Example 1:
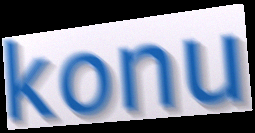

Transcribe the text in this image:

konu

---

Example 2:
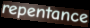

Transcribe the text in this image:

repentance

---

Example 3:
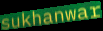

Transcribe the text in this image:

sukhanwar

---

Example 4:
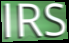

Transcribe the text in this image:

IRS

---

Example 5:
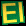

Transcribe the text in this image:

El